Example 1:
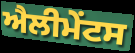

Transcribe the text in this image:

ਐਲੀਮੇੰਟਸ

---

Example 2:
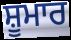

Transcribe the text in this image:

ਸ਼ੂਮਾਰ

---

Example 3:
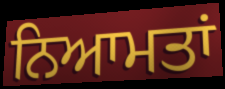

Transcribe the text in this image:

ਨਿਆਮਤਾਂ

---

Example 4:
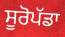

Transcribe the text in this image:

ਸੂਰੋਪੱਡਾ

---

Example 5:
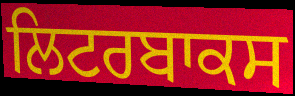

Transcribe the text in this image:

ਲਿਟਰਬਾਕਸ